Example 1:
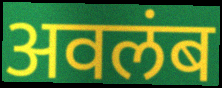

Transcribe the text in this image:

अवलंब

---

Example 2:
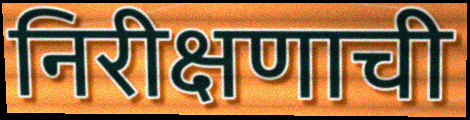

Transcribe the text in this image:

निरीक्षणाची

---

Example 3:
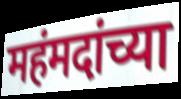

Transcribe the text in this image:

महंमदांच्या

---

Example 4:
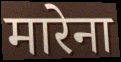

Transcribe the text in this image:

मारेना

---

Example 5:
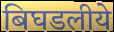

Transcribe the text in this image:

बिघडलीये